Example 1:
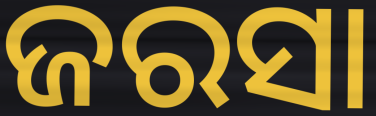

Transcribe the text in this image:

ଜରସା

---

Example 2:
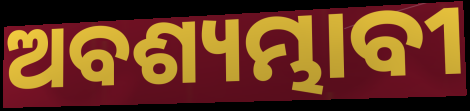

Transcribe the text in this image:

ଅବଶ୍ୟମ୍ଭାବୀ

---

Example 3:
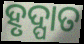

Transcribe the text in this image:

ହୃଦ୍ପାତ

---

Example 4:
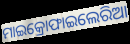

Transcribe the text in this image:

ମାଇକ୍ରୋଫାଇଲେରିଆ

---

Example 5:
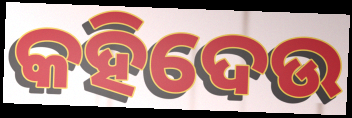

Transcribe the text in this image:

କହିଦେଉ